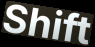
Shift